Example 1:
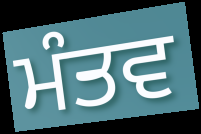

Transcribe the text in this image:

ਮੰਤਵ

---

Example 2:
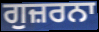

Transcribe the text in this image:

ਗੁਜ਼ਰਨਾ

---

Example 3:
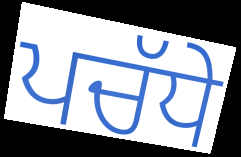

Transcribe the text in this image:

ਪਚੱਧੇ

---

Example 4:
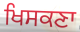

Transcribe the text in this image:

ਖਿਸਕਣਾ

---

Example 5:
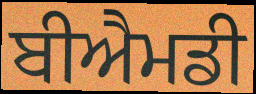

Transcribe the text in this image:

ਬੀਐਮਡੀ